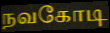
நவகோடி